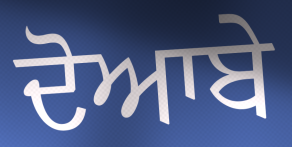
ਦੋਆਬੇ